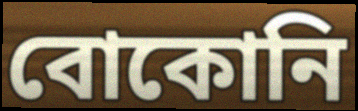
বোকোনি